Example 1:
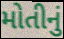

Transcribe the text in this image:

મોતીનું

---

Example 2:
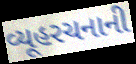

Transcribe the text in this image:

વ્યૂહરચનાની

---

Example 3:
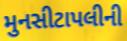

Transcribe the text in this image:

મુનસીટાપલીની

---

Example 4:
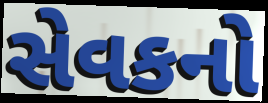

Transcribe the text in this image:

સેવકનો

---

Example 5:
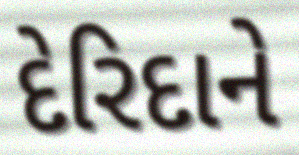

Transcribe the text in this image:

દેરિદાને